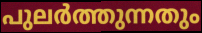
പുലർത്തുന്നതും